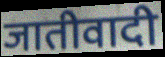
जातीवादी